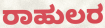
ರಾಹುಲರ